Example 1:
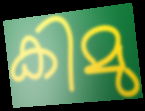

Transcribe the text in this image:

കിമു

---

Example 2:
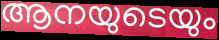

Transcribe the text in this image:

ആനയുടെയും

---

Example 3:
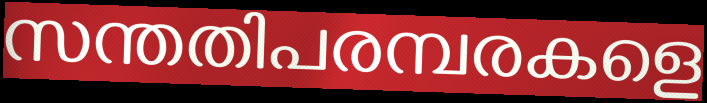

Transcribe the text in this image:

സന്തതിപരമ്പരകളെ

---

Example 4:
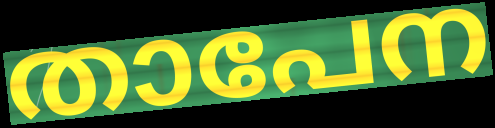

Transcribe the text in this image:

താപേന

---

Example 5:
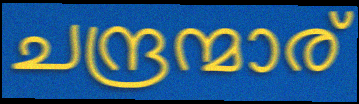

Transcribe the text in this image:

ചന്ദ്രന്മാര്